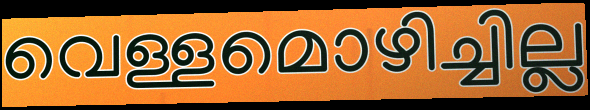
വെള്ളമൊഴിച്ചില്ല